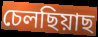
চেলছিয়াছ